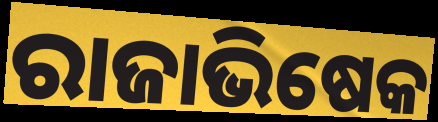
ରାଜାଭିଷେକ